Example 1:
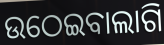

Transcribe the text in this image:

ଉଠେଇବାଲାଗି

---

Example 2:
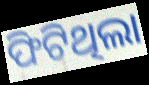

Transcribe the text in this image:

ଫିଟିଥିଲା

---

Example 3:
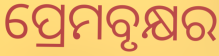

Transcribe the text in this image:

ପ୍ରେମବୃକ୍ଷର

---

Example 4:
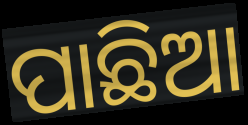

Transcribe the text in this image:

ପାଛିଆ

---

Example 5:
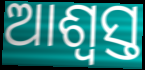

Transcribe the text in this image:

ଆଶ୍ଵସ୍ତ